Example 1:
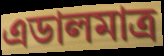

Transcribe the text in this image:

এডালমাত্ৰ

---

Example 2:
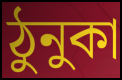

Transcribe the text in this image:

ঠুনুকা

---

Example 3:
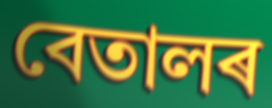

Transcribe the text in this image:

বেতালৰ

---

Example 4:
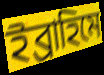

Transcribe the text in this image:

ইব্ৰাহিমে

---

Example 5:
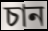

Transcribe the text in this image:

চান